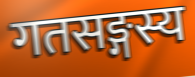
गतसङ्गस्य